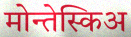
मोन्तेस्किअ